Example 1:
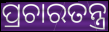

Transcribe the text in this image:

ପ୍ରଚାରତନ୍ତ୍ର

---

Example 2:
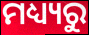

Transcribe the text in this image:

ମଧ୍ୟ୍ୟରୁ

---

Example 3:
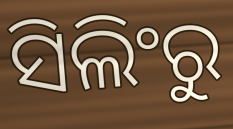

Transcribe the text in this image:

ସିଲିଂରୁ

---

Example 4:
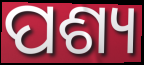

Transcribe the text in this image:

ପଶ୍ୟ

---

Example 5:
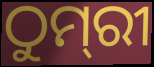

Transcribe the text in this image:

ଠୁମ୍‌ରୀ